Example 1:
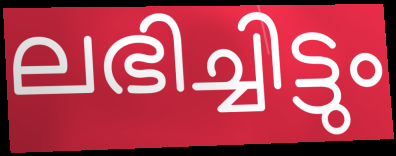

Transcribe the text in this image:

ലഭിച്ചിട്ടും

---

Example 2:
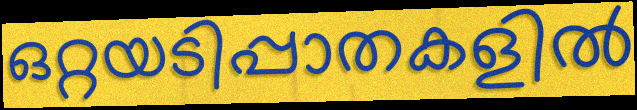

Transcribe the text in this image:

ഒറ്റയടിപ്പാതകളിൽ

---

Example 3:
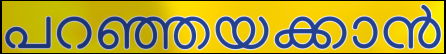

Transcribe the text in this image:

പറഞ്ഞയക്കാൻ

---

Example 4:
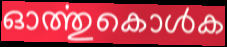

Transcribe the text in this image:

ഓൎത്തുകൊൾക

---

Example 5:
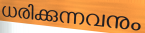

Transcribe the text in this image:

ധരിക്കുന്നവനും